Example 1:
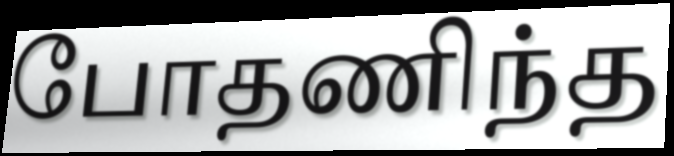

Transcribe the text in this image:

போதணிந்த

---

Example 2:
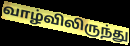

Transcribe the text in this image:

வாழ்விலிருந்து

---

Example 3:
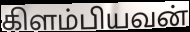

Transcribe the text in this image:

கிளம்பியவன்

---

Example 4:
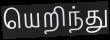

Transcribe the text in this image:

யெறிந்து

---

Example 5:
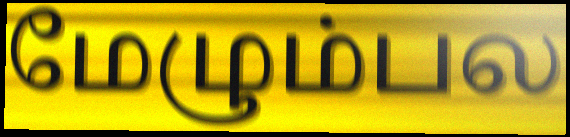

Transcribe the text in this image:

மேழும்பல